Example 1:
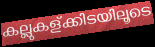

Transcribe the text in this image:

കല്ലുകള്ക്കിടയിലൂടെ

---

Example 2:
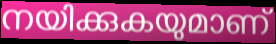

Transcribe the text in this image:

നയിക്കുകയുമാണ്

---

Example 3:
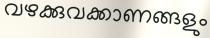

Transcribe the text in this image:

വഴക്കുവക്കാണങ്ങളും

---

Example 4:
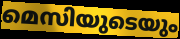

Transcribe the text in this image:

മെസിയുടെയും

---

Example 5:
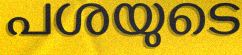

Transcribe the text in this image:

പശയുടെ